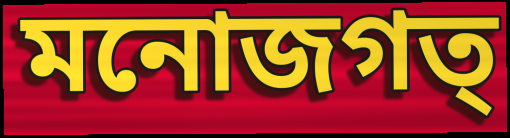
মনোজগত্